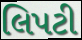
લિપટી